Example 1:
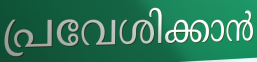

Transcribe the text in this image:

പ്രവേശിക്കാൻ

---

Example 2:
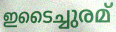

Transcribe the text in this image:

ഇടൈച്ചുരമ്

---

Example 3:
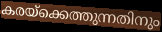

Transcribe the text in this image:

കരയ്ക്കെത്തുന്നതിനും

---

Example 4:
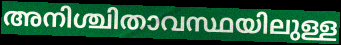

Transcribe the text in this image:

അനിശ്ചിതാവസ്ഥയിലുള്ള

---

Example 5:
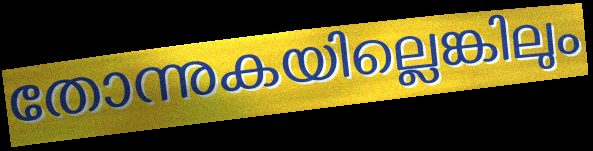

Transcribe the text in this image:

തോന്നുകയില്ലെങ്കിലും